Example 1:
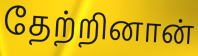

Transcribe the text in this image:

தேற்றினான்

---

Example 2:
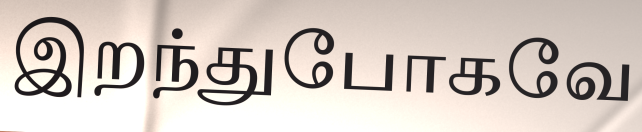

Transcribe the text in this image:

இறந்துபோகவே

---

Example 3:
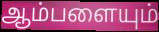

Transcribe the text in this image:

ஆம்பளையும்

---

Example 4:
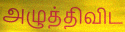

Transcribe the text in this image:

அழுத்திவிட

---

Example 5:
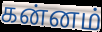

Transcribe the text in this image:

கன்னம்